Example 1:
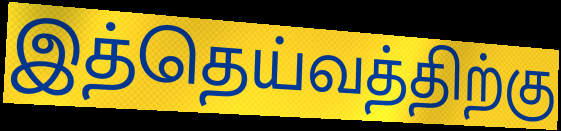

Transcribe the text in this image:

இத்தெய்வத்திற்கு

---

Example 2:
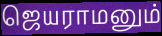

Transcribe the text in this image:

ஜெயராமனும்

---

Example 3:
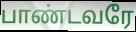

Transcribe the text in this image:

பாண்டவரே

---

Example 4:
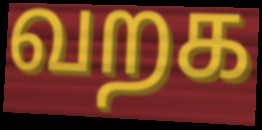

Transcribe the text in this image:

வறக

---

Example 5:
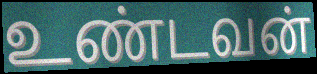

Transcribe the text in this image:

உண்டவன்